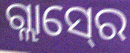
ଗ୍ଲାସ୍‍ରେ